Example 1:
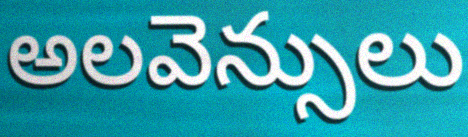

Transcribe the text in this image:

అలవెన్సులు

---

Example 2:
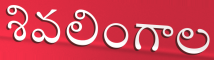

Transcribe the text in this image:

శివలింగాల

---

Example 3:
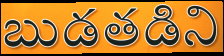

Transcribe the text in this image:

బుడతడిని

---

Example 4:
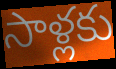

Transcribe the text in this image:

సాళ్లకు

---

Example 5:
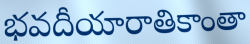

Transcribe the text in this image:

భవదీయారాతికాంతా